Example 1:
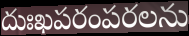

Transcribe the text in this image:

దుఃఖపరంపరలను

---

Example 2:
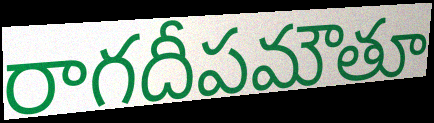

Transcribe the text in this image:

రాగదీపమౌతూ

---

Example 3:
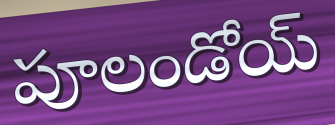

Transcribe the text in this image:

పూలండోయ్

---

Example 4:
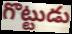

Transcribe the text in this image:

గొట్టుడు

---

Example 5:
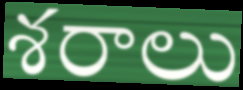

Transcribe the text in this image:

శరాలు